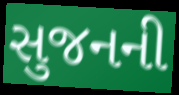
સુજનની